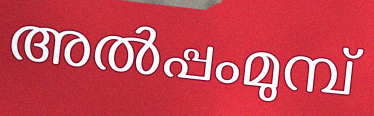
അൽപ്പംമുമ്പ്